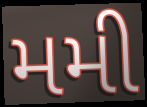
મમી